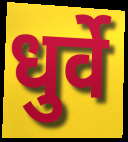
धुर्वे